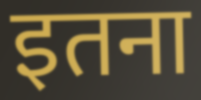
इतना